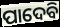
ପାଦେବି